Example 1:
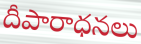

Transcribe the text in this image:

దీపారాధనలు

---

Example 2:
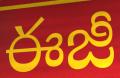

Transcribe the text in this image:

ఈజీ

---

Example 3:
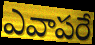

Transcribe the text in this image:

ఎవాపరే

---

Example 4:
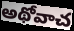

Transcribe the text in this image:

అథోవాచ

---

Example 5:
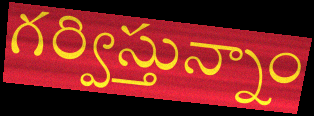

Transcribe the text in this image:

గర్విస్తున్నాం